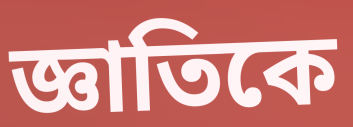
জ্ঞাতিকে